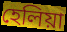
হেলিয়া